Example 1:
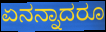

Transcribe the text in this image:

ಏನನ್ನಾದರೂ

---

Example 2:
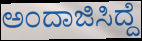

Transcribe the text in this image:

ಅಂದಾಜಿಸಿದ್ದೆ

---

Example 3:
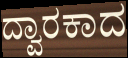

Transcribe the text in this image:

ದ್ವಾರಕಾದ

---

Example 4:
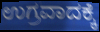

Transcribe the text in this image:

ಉಗ್ರವಾದಕ್ಕೆ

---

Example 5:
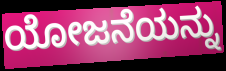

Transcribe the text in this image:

ಯೋಜನೆಯನ್ನು